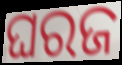
ଘରଜ